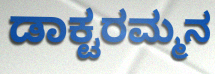
ಡಾಕ್ಟರಮ್ಮನ